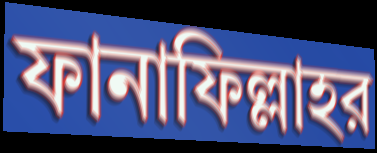
ফানাফিল্লাহর